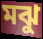
মঝু